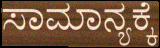
ಸಾಮಾನ್ಯಕ್ಕೆ